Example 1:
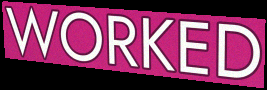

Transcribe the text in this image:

WORKED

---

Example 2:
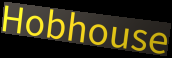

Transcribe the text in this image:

Hobhouse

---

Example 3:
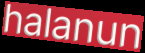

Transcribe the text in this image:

halanun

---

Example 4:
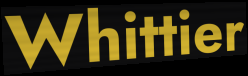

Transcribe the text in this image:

Whittier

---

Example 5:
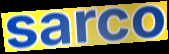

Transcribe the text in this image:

sarco